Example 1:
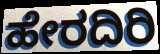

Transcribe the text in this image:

ಹೇರದಿರಿ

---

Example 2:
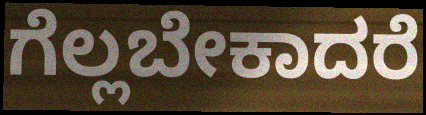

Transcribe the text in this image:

ಗೆಲ್ಲಬೇಕಾದರೆ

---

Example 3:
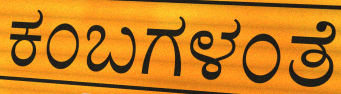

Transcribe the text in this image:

ಕಂಬಗಳಂತೆ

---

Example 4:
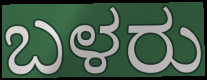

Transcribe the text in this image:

ಬಳರು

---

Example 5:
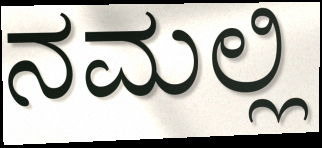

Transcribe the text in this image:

ನಮಲ್ಲಿ